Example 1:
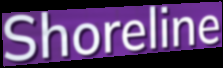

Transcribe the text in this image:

Shoreline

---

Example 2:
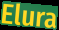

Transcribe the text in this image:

Elura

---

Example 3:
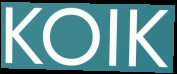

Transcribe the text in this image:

KOIK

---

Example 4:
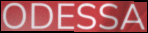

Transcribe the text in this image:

ODESSA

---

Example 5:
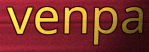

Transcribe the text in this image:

venpa